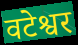
वटेश्वर